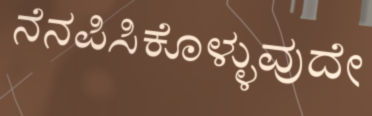
ನೆನಪಿಸಿಕೊಳ್ಳುವುದೇ